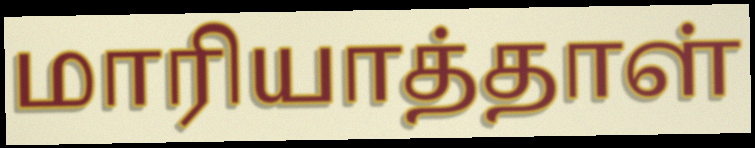
மாரியாத்தாள்